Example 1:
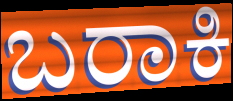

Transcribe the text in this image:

ಬರಾಕಿ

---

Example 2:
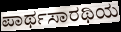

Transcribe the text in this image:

ಪಾರ್ಥಸಾರಥಿಯ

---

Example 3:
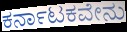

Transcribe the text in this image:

ಕರ್ನಾಟಕವೇನು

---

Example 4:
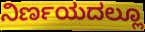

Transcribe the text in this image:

ನಿರ್ಣಯದಲ್ಲೂ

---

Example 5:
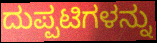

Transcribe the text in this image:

ದುಪ್ಪಟಿಗಳನ್ನು